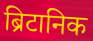
ब्रिटानिक